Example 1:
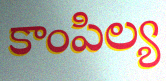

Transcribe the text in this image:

కాంపిల్య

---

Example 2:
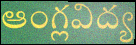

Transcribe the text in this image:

ఆంగ్లవిద్య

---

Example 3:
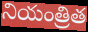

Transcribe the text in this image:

నియంత్రిత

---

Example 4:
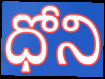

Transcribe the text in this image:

ధోని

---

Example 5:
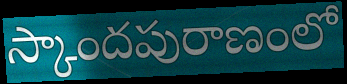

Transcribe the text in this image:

స్కాందపురాణంలో